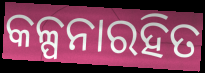
କଳ୍ପନାରହିତ